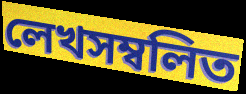
লেখসম্বলিত